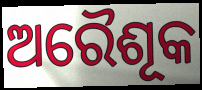
ଅରୈଶୂକ